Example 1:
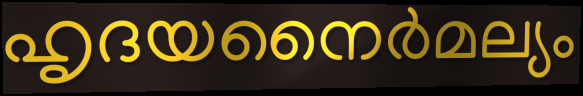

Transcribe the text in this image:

ഹൃദയനൈർമല്യം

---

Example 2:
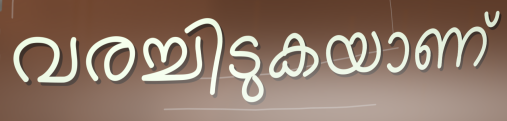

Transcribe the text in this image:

വരച്ചിടുകയാണ്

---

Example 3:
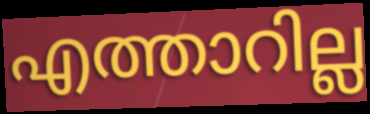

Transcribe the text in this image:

എത്താറില്ല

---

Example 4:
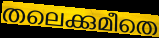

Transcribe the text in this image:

തലെക്കുമീതെ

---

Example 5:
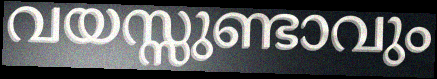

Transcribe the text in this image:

വയസ്സുണ്ടാവും